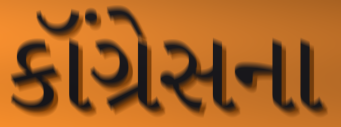
કૉંગ્રેસના